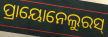
ପ୍ରାୟୋନେଲୁରସ୍